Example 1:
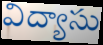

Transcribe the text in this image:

విద్యాసు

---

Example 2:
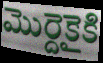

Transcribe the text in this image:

మొర్దెకైకి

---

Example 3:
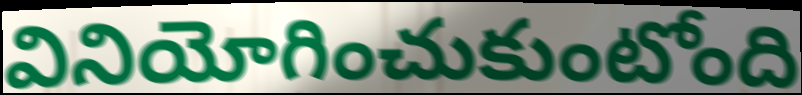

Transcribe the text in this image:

వినియోగించుకుంటోంది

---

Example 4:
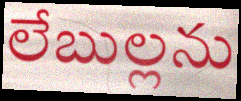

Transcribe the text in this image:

లేబుల్లను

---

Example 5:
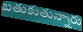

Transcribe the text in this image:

బతుకుతున్నారు